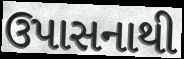
ઉપાસનાથી